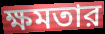
ক্ষমতার